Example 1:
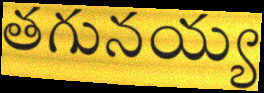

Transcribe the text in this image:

తగునయ్య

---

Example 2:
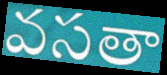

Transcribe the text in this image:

వసతా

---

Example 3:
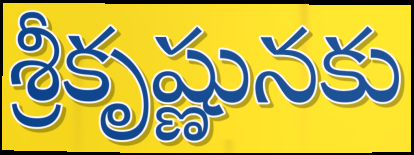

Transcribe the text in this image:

శ్రీకృష్ణునకు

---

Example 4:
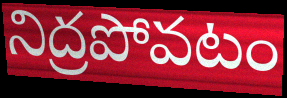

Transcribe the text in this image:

నిద్రపోవటం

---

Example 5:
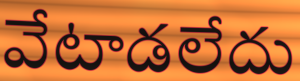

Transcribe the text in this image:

వేటాడలేదు